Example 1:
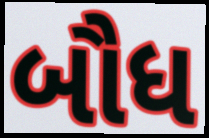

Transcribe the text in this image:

બૌધ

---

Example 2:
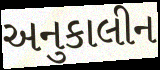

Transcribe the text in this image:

અનુકાલીન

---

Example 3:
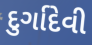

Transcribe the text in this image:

દુર્ગાદેવી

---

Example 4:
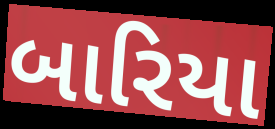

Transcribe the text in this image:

બારિયા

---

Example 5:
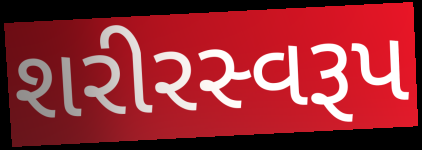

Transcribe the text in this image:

શરીરસ્વરૂપ